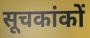
सूचकांकों